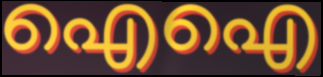
ഐഐ